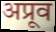
अप्रूव